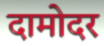
दामोदर